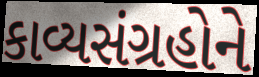
કાવ્યસંગ્રહોને